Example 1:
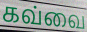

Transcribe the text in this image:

கவ்வை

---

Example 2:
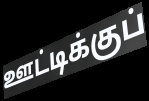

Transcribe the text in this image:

ஊட்டிக்குப்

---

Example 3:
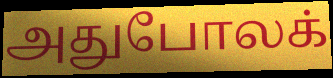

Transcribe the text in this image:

அதுபோலக்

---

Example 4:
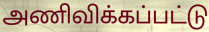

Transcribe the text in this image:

அணிவிக்கப்பட்டு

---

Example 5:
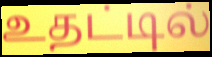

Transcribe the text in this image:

உதட்டில்